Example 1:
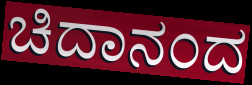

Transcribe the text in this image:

ಚಿದಾನಂದ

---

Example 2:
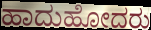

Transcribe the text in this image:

ಹಾದುಹೋದರು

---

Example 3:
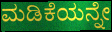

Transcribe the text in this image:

ಮಡಿಕೆಯನ್ನೇ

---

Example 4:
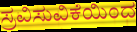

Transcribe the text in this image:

ಸ್ರವಿಸುವಿಕೆಯಿಂದ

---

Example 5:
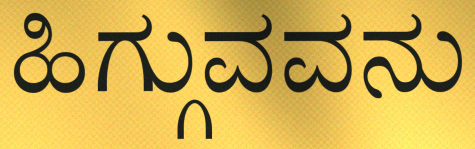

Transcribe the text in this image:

ಹಿಗ್ಗುವವನು